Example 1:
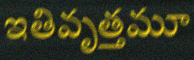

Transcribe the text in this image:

ఇతివృత్తమూ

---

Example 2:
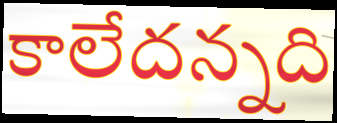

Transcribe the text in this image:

కాలేదన్నది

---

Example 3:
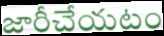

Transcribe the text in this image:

జారీచేయటం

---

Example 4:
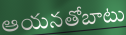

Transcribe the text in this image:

ఆయనతోబాటు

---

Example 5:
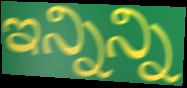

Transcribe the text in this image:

ఇన్నిన్ని